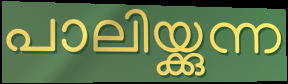
പാലിയ്ക്കുന്ന